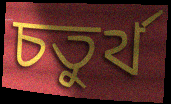
চতুৰ্থ